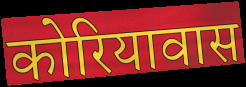
कोरियावास